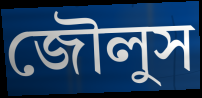
জৌলুস